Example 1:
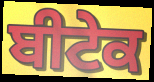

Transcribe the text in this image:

ਬੀਟੇਕ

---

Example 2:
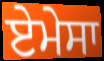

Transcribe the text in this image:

ਏਮੇਸਾ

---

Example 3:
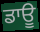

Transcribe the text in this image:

ਡਾਊ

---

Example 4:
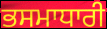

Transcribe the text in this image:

ਭਸਮਾਧਾਰੀ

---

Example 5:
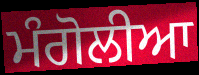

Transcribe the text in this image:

ਮੰਗੋਲੀਆ